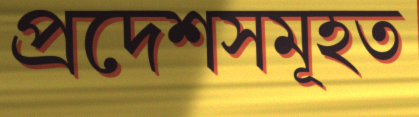
প্ৰদেশসমূহত